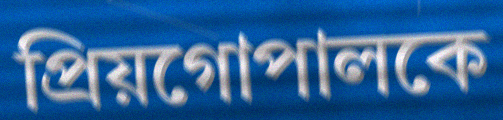
প্রিয়গোপালকে